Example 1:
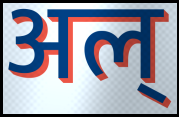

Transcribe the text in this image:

अल्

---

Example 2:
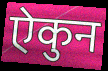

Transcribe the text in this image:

ऐकुन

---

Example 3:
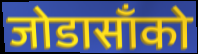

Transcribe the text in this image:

जोडासाँको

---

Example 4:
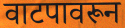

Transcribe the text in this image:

वाटपावरून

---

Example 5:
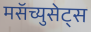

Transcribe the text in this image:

मसॅच्युसेट्स